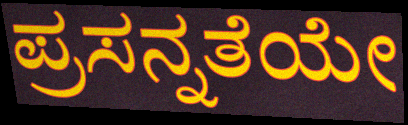
ಪ್ರಸನ್ನತೆಯೇ